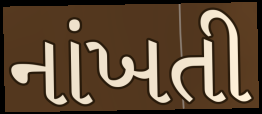
નાંખતી